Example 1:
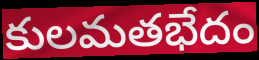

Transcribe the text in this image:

కులమతభేదం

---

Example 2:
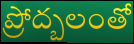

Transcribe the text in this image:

ప్రోద్బలంతో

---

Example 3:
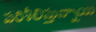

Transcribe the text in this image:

పరిశీలిస్తున్నాయి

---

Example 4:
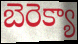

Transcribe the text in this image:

బెరెక్యా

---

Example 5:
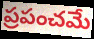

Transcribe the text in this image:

ప్రపంచమే